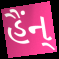
હૈંન્